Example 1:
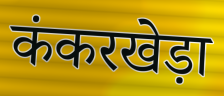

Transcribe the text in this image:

कंकरखेड़ा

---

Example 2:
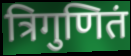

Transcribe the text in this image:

त्रिगुणितं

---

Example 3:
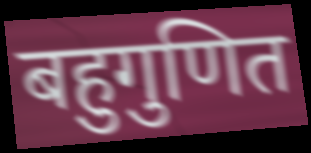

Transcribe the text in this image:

बहुगुणित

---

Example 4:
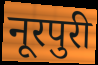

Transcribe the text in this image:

नूरपुरी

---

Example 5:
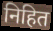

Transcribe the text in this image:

निहित